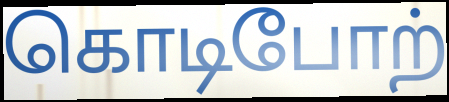
கொடிபோற்